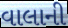
વાલાની